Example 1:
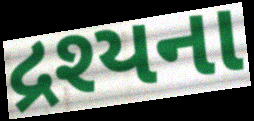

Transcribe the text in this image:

દ્રશ્યના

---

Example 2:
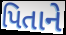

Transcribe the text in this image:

પિતાને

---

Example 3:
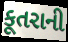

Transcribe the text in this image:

કૂતરાની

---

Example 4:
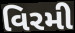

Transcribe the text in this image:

વિરમી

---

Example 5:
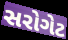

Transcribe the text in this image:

સરોગેટ